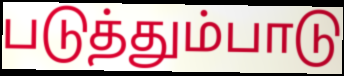
படுத்தும்பாடு